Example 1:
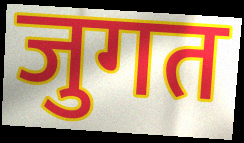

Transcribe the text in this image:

जुगत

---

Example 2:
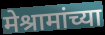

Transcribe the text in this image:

मेश्रामांच्या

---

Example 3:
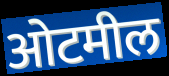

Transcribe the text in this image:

ओटमील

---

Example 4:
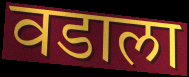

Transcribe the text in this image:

वडाला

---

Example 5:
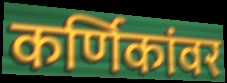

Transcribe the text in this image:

कर्णिकांवर